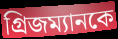
গ্রিজম্যানকে